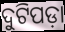
ଦୁଟିପଡ଼ା